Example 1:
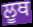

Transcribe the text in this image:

ਲੂਥ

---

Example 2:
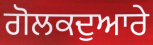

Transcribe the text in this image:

ਗੋਲਕਦੁਆਰੇ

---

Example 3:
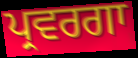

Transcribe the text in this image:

ਪ੍ਰਵਰਗਾ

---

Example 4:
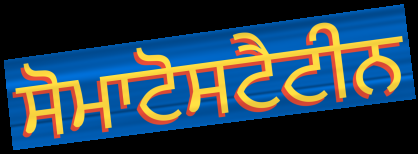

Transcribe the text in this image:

ਸੋਮਾਟੋਸਟੈਟੀਨ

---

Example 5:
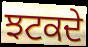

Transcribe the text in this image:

ਝਟਕਦੇ